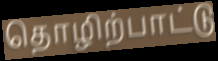
தொழிற்பாட்டு